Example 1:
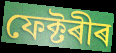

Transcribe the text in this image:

ফেক্টৰীৰ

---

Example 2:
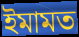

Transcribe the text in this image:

ইমামত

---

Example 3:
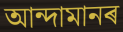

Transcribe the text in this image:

আন্দামানৰ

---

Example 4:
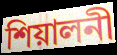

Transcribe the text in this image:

শিয়ালনী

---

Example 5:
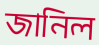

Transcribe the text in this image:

জানিল